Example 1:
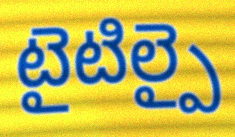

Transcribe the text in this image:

టైటిల్పై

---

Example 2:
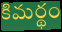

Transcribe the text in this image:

కిమర్థం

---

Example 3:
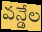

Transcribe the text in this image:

వన్డేల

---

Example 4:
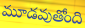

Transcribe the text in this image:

మూడవుతోంది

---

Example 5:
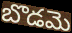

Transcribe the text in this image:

బొడమె